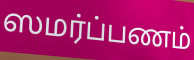
ஸமர்ப்பணம்